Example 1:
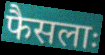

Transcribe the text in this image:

फैसलाः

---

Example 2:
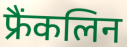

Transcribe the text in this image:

फ्रैंकलिन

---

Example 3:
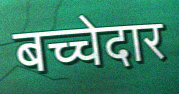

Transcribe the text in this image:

बच्चेदार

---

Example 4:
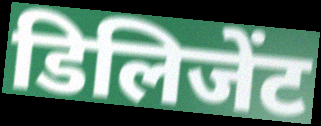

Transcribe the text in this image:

डिलिजेंट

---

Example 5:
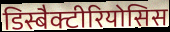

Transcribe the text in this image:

डिस्बैक्टीरियोसिस